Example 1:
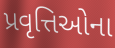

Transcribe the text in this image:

પ્રવૃત્તિઓના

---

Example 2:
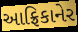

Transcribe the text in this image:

આફ્રિકાનેર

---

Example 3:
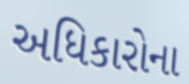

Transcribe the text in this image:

અધિકારોના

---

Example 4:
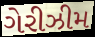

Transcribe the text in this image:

ગેરીઝીમ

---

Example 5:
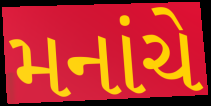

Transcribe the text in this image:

મનાંચે